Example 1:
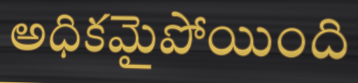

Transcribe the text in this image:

అధికమైపోయింది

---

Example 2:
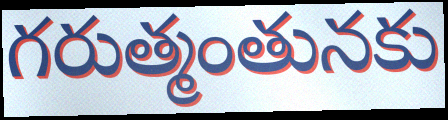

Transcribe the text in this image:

గరుత్మంతునకు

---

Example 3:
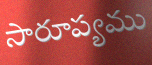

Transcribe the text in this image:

సారూప్యము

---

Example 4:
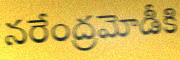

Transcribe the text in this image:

నరేంద్రమోడీకి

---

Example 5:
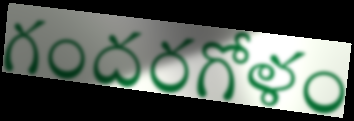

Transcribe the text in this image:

గందరగోళం